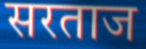
सरताज